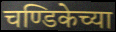
चण्डिकेच्या